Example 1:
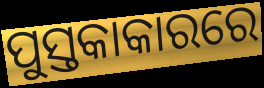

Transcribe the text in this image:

ପୁସ୍ତକାକାରରେ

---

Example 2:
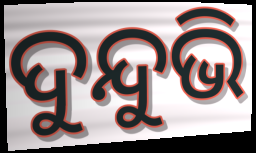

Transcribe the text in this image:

ଦୁନ୍ଦୁଭି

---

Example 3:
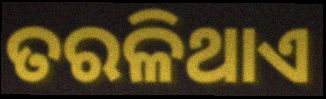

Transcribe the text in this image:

ତରଳିଥାଏ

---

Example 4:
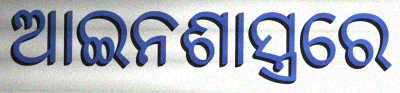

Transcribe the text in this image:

ଆଇନଶାସ୍ତ୍ରରେ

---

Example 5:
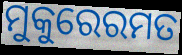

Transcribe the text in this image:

ମୁକୁରେରମତ